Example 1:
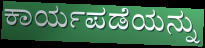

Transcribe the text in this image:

ಕಾರ್ಯಪಡೆಯನ್ನು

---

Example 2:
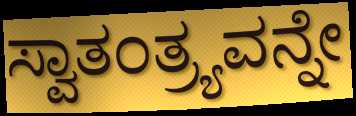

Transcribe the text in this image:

ಸ್ವಾತಂತ್ರ್ಯವನ್ನೇ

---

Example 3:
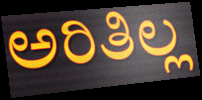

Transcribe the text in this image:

ಅರಿತಿಲ್ಲ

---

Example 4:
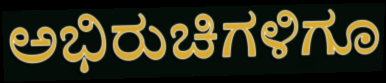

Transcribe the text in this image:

ಅಭಿರುಚಿಗಳಿಗೂ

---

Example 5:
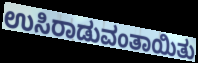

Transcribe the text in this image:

ಉಸಿರಾಡುವಂತಾಯಿತು